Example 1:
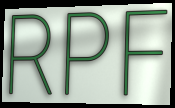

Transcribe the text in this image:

RPF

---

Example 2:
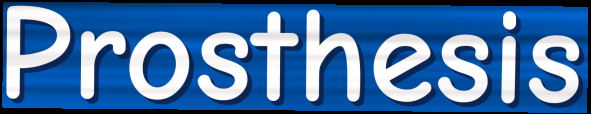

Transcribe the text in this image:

Prosthesis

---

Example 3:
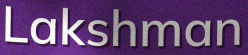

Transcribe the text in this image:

Lakshman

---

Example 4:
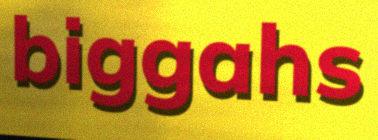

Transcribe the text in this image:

biggahs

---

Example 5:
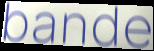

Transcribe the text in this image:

bande